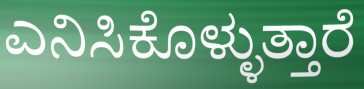
ಎನಿಸಿಕೊಳ್ಳುತ್ತಾರೆ